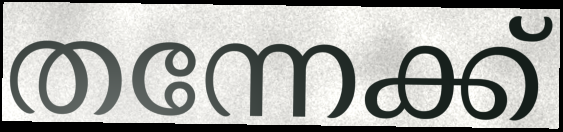
തന്നേക്ക്